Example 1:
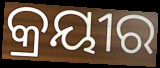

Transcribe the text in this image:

କ୍ରୟୀର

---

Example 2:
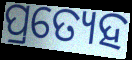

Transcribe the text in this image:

ପ୍ରତ୍ୟେହ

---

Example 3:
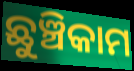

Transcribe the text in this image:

ଛୁଞ୍ଚିକାମ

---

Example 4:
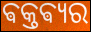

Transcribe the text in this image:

ଵକ୍ତଵ୍ୟର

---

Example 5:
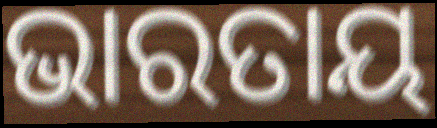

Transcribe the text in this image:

ଭାରତାୟ